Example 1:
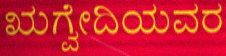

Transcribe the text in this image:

ಋಗ್ವೇದಿಯವರ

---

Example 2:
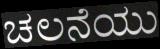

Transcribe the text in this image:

ಚಲನೆಯು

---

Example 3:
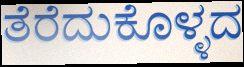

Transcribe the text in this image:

ತೆರೆದುಕೊಳ್ಳದ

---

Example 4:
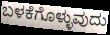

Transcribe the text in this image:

ಬಳಕೆಗೊಳ್ಳುವುದು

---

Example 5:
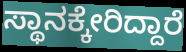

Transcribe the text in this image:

ಸ್ಥಾನಕ್ಕೇರಿದ್ದಾರೆ